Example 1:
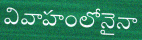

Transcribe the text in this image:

వివాహంలోనైనా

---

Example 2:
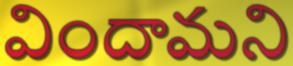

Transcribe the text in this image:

విందామని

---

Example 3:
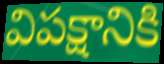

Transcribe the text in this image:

విపక్షానికి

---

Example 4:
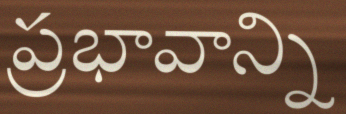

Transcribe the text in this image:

ప్రభావాన్ని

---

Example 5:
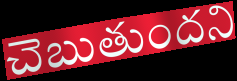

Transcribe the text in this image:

చెబుతుందని